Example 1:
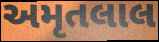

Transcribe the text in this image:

અમૃતલાલ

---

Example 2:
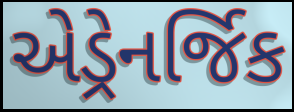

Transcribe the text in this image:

એડ્રેનર્જિક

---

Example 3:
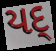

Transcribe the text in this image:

યદ્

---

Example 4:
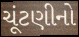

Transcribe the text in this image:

ચૂંટણીનો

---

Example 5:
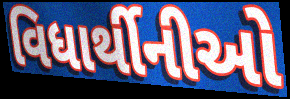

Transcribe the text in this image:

વિધાર્થીનીઓ